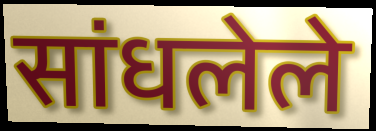
सांधलेले